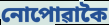
নোপোৱাকৈ